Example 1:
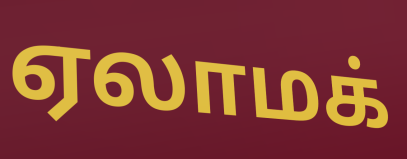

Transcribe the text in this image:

ஏலாமக்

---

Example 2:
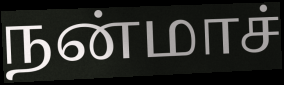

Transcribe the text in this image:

நன்மாச்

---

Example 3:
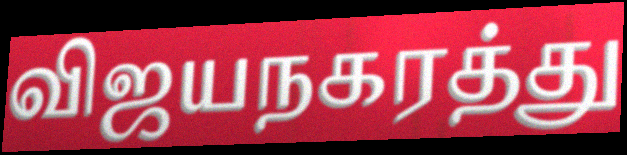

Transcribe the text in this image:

விஜயநகரத்து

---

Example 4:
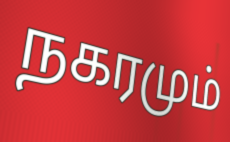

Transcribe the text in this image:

நகரமும்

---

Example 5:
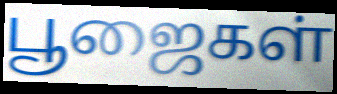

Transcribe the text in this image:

பூஜைகள்